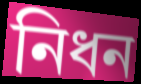
নিধন